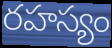
రహస్యం